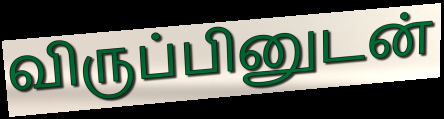
விருப்பினுடன்